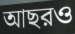
আছরও